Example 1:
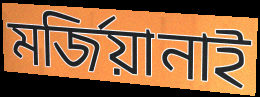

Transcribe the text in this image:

মৰ্জিয়ানাই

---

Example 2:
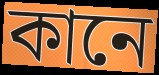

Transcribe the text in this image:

কানে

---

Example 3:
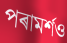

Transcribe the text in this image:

পৰামৰ্শও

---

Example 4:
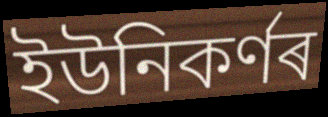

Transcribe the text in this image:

ইউনিকৰ্ণৰ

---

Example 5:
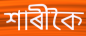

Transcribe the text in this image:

শাৰীকৈ